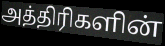
அத்திரிகளின்